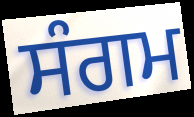
ਸੰਗਮ